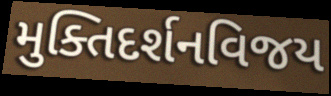
મુક્તિદર્શનવિજય